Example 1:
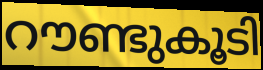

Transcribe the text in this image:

റൗണ്ടുകൂടി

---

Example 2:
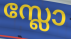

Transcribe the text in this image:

സ്ലോ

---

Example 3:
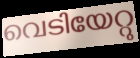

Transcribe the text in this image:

വെടിയേറ്റു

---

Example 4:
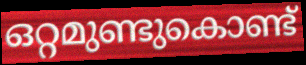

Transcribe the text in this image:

ഒറ്റമുണ്ടുകൊണ്ട്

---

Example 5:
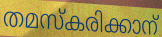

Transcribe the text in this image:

തമസ്കരിക്കാന്